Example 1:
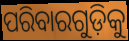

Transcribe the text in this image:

ପରିବାରଗୁଡ଼ିକୁ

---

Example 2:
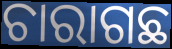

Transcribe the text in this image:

ଚାରାଗଛ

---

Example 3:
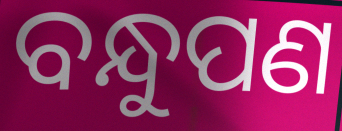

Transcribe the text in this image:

ବନ୍ଧୁପଣ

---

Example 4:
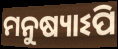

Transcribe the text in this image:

ମନୁଷ୍ୟାଽପି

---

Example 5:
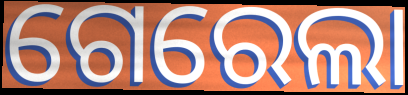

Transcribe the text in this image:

ଗେରେଲା